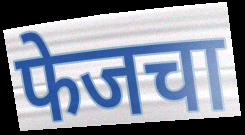
फेजचा